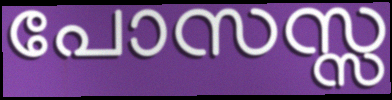
പോസസ്സ